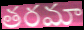
తరమా